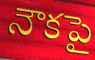
నౌకపై